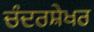
ਚੰਦਰਸ਼ੇਖਰ